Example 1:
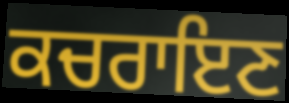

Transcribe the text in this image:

ਕਚਰਾਇਣ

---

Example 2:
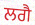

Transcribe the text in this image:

ਲਗੈ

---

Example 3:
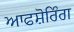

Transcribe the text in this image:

ਆਫਸ਼ੋਰਿੰਗ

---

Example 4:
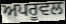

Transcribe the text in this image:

ਅਪਰੂਵਲ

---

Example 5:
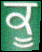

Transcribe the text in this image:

ਕੂ